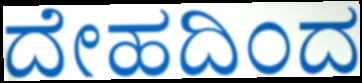
ದೇಹದಿಂದ